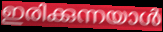
ഇരിക്കുന്നയാൾ